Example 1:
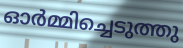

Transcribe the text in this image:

ഓർമ്മിച്ചെടുത്തു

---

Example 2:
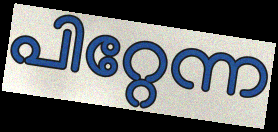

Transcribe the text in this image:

പിറ്റേന്ന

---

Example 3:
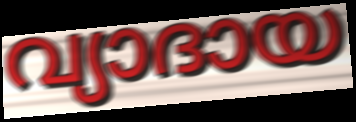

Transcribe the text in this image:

വ്യാദായ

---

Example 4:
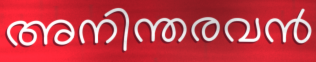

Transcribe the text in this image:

അനിന്തരവൻ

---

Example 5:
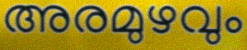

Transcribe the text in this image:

അരമുഴവും